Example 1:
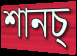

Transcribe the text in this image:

শানচ্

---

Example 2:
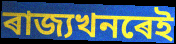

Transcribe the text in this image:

ৰাজ্যখনৰেই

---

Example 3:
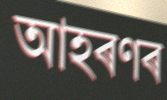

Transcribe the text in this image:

আহৰণৰ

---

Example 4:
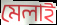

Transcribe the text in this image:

মেলাই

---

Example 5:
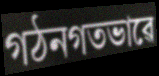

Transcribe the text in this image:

গঠনগতভাৱে